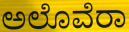
ಅಲೊವೆರಾ